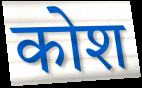
कोश